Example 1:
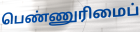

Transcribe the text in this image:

பெண்ணுரிமைப்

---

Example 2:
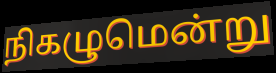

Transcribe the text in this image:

நிகழுமென்று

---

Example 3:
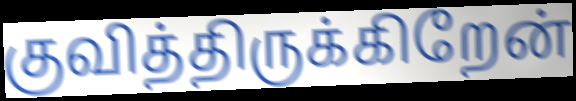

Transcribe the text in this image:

குவித்திருக்கிறேன்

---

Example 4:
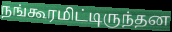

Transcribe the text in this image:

நங்கூரமிட்டிருந்தன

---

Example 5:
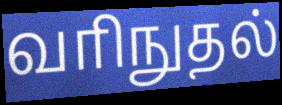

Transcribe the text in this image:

வரிநுதல்